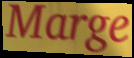
Marge